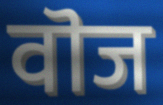
वॊज